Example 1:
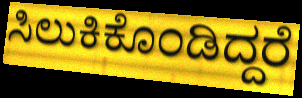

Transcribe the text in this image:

ಸಿಲುಕಿಕೊಂಡಿದ್ದರೆ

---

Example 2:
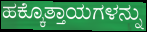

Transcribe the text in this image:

ಹಕ್ಕೊತ್ತಾಯಗಳನ್ನು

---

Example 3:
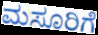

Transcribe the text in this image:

ಮಸೂರಿಗೆ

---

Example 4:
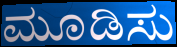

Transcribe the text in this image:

ಮೂಡಿಸು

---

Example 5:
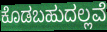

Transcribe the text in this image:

ಕೊಡಬಹುದಲ್ಲವೆ